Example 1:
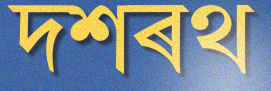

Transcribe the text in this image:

দশৰথ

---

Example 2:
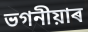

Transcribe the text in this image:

ভগনীয়াৰ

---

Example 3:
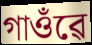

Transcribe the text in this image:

গাওঁৱে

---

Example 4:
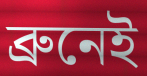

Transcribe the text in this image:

ব্ৰুনেই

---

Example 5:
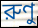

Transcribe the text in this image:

ৰুণু